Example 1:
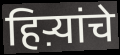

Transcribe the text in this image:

हिऱ्‍यांचे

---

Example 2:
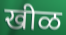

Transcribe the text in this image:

खीळ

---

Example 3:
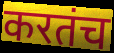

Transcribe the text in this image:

करतंच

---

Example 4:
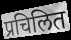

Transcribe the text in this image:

प्रचिलित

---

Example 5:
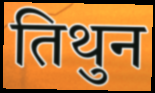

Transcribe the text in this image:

तिथुन